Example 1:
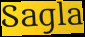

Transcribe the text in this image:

Sagla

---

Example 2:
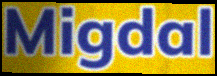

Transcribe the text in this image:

Migdal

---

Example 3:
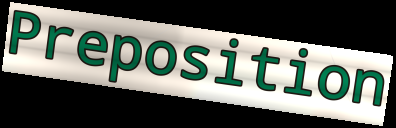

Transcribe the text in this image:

Preposition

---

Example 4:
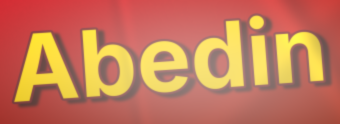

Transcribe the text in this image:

Abedin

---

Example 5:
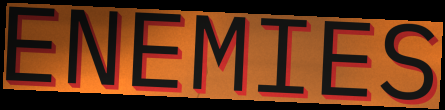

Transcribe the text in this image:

ENEMIES